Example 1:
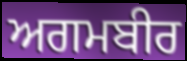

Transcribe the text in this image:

ਅਗਮਬੀਰ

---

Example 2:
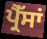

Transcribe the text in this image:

ਪ੍ਰੈੱਸਾਂ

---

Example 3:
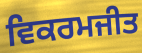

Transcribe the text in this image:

ਵਿਕਰਮਜੀਤ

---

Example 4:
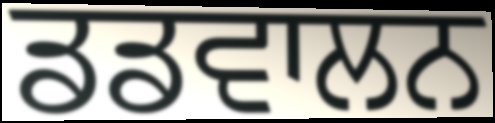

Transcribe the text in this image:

ਡਡਵਾਲਨ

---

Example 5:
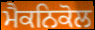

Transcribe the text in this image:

ਮੈਕਨਿਕੋਲ